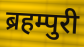
ब्रहम्पुरी